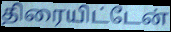
திரையிட்டேன்